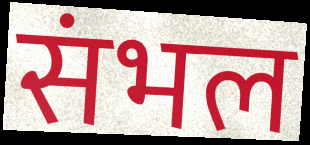
संभल